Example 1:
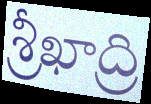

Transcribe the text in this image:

శ్రీఖాద్రి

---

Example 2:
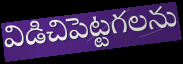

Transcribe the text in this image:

విడిచిపెట్టగలను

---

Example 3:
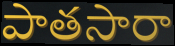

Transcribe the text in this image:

పాతసారా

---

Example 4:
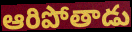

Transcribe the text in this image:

ఆరిపోతాడు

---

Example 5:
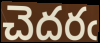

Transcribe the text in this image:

చెదరఁ